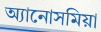
অ্যানোসমিয়া